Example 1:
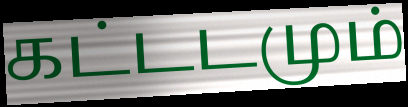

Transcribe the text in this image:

கட்டடமும்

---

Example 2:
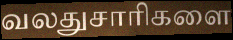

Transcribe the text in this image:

வலதுசாரிகளை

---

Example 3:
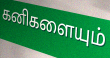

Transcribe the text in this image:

கனிகளையும்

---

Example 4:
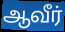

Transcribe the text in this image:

ஆவீர்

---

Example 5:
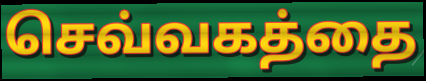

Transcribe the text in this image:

செவ்வகத்தை